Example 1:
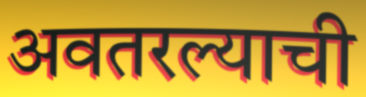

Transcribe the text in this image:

अवतरल्याची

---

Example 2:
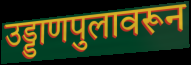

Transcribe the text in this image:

उड्डाणपुलावरून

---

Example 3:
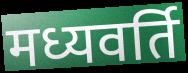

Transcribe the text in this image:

मध्यवर्ति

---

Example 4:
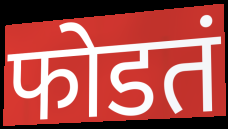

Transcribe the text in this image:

फोडतं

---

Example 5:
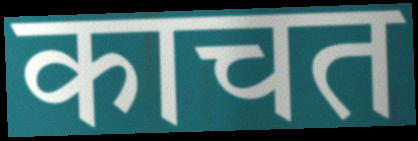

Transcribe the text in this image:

काचत